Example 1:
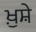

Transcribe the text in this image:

ਖ਼ੁਸ਼ੇ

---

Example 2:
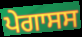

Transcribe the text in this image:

ਪੇਗਾਸਸ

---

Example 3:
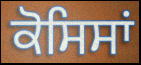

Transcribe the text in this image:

ਕੋਸਿਸਾਂ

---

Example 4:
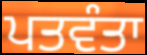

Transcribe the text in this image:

ਪਤਵੰਤਾ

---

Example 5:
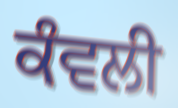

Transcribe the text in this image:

ਕੰਵਲੀ